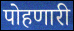
पोहणारी